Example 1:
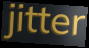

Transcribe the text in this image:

jitter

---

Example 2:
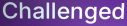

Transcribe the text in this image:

Challenged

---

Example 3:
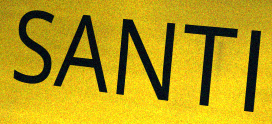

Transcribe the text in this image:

SANTI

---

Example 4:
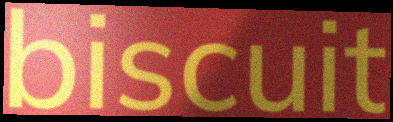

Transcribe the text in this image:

biscuit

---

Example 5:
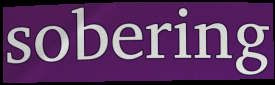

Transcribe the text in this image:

sobering